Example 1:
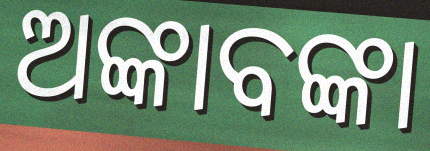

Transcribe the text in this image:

ଅଙ୍କାବଙ୍କା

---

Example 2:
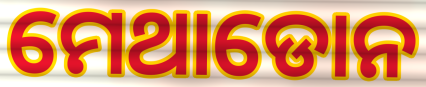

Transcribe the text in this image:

ମେଥାଡୋନ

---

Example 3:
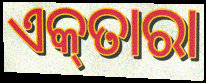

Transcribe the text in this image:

ଏକ୍‌ତାରା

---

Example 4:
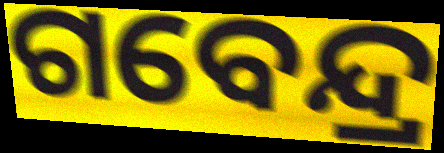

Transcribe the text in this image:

ଗବେନ୍ଦ୍ର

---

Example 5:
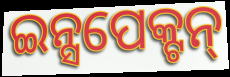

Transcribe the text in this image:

ଇନ୍ସପେକ୍ଟନ୍